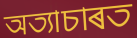
অত্যাচাৰত